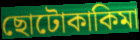
ছোটোকাকিমা